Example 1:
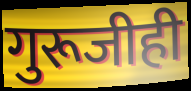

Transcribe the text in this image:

गुरूजीही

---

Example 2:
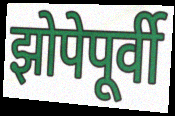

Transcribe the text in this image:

झोपेपूर्वी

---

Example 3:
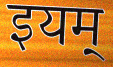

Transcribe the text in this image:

इयम्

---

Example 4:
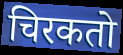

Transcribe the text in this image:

चिरकतो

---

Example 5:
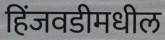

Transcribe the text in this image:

हिंजवडीमधील